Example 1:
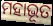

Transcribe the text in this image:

ମହାଭୂତ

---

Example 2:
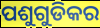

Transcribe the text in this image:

ପଶୁଗୁଡିକର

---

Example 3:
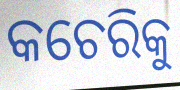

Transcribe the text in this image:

କଚେରିକୁ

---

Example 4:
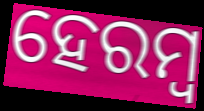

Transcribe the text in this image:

ହେରମ୍ୱ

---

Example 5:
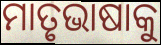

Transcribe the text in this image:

ମାତୃଭାଷାକୁ